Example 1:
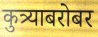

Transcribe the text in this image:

कुत्र्याबरोबर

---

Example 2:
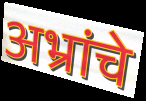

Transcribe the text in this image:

अभ्रांचे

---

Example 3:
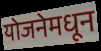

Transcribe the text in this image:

योजनेमधून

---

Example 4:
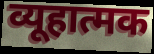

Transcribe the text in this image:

व्यूहात्मक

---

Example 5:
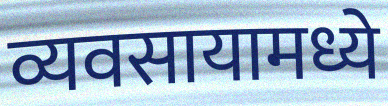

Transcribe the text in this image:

व्यवसायामध्ये